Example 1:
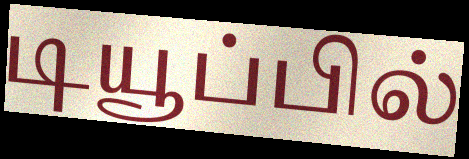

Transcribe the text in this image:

டியூப்பில்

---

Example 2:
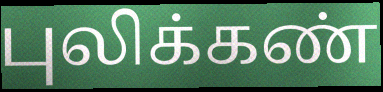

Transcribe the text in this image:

புலிக்கண்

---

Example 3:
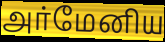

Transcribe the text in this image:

அர்மேனிய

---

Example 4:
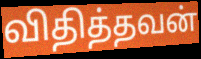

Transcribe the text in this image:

விதித்தவன்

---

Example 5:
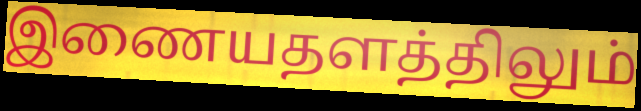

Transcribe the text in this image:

இணையதளத்திலும்